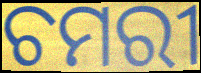
ଚମରୀ